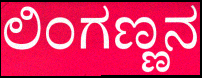
ಲಿಂಗಣ್ಣನ